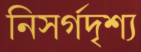
নিসর্গদৃশ্য